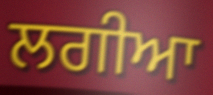
ਲਗੀਆ